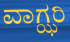
ವಾಗ್ಝರಿ